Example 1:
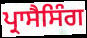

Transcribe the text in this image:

ਪ੍ਰਾਸੈਸਿੰਗ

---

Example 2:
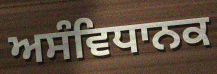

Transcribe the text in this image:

ਅਸੰਵਿਧਾਨਕ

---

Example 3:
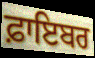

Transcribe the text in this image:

ਫ਼ਾਇਬਰ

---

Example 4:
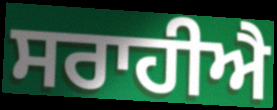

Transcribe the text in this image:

ਸਰਾਹੀਐ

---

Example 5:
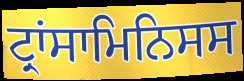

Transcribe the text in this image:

ਟ੍ਰਾਂਸਾਮਿਨਿਸਸ